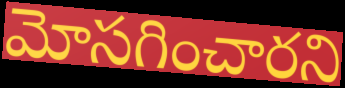
మోసగించారని